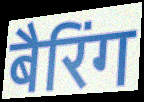
बैरिंग